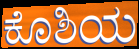
ಕೊಶಿಯ